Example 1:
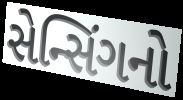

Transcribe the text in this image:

સેન્સિંગનો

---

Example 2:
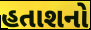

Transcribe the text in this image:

હતાશનો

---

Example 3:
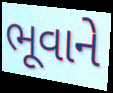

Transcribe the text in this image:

ભૂવાને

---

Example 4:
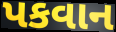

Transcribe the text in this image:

પકવાન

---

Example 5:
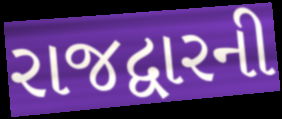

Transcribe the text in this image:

રાજદ્વારની